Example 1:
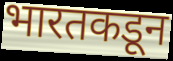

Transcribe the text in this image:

भारतकडून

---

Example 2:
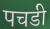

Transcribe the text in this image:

पचडी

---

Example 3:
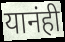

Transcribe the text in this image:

यानंही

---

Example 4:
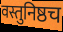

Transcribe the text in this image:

वस्तुनिष्ठच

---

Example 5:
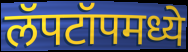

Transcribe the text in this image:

लॅपटॉपमध्ये